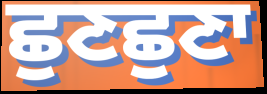
ਛੁਣਛੁਣਾ